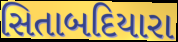
સિતાબદિયારા